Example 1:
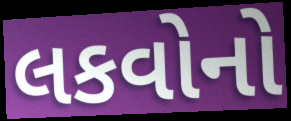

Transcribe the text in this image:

લકવોનો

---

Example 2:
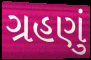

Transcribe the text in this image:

ગ્રહણું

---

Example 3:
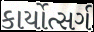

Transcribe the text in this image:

કાર્યોત્સર્ગ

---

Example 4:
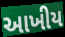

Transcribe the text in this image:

આખીય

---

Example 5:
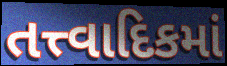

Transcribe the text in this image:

તત્ત્વાદિકમાં